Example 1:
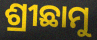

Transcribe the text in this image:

ଶ୍ରୀଛାମୁ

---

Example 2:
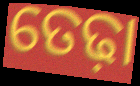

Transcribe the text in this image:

ତେଢ଼ା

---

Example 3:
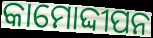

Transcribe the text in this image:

କାମୋଦ୍ଦୀପନ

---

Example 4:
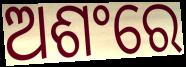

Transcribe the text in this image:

ଅଶଂରେ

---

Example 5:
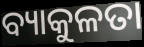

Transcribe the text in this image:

ବ୍ୟାକୁଳତା